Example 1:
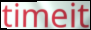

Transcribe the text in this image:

timeit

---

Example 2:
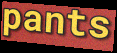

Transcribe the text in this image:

pants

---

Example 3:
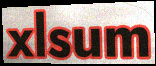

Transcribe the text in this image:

xlsum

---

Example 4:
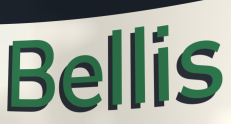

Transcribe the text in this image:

Bellis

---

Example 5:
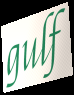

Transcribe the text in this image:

gulf